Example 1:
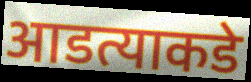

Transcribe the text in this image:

आडत्याकडे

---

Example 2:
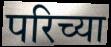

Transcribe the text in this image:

परिच्या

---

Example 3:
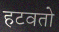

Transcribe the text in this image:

हटवतो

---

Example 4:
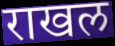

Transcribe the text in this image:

राखल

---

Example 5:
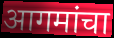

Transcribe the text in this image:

आगमांचा